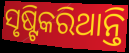
ସୃଷ୍ଟିକରିଥାନ୍ତି